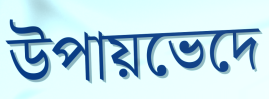
উপায়ভেদে